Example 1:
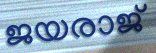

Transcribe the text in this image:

ജയരാജ്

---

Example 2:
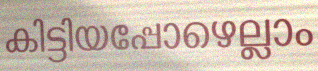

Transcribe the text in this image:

കിട്ടിയപ്പോഴെല്ലാം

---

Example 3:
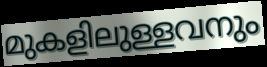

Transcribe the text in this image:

മുകളിലുള്ളവനും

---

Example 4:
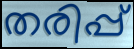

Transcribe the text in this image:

തരിപ്പ്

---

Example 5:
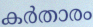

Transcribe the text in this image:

കർതാരം